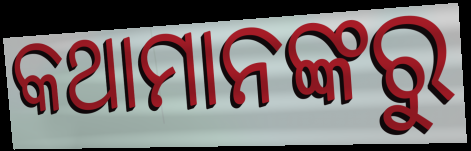
କଥାମାନଙ୍କରୁ